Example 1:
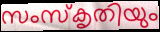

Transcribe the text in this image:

സംസ്കൃതിയും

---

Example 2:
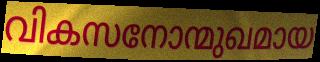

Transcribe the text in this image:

വികസനോന്മുഖമായ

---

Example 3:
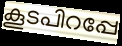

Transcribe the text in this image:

കൂടപിറപ്പേ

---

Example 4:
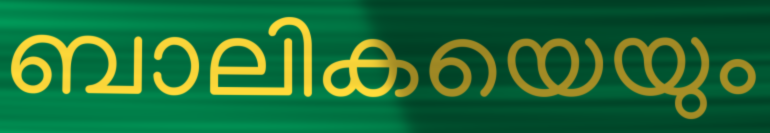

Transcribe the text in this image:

ബാലികയെയും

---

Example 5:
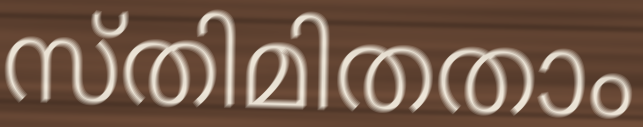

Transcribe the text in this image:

സ്തിമിതതാം